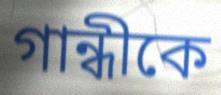
গান্ধীকে